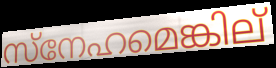
സ്നേഹമെങ്കില്